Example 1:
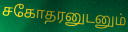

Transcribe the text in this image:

சகோதரனுடனும்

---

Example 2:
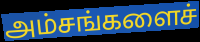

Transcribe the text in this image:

அம்சங்களைச்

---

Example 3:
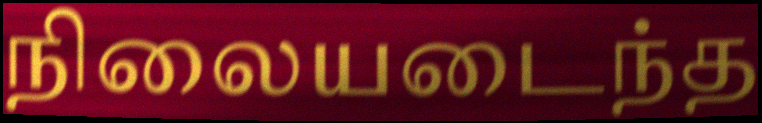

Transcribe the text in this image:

நிலையடைந்த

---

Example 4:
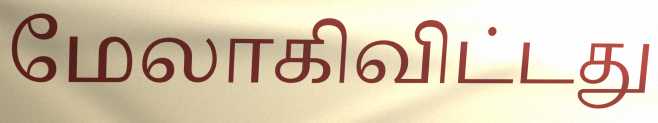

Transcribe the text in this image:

மேலாகிவிட்டது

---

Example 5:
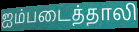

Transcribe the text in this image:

ஐம்படைத்தாலி